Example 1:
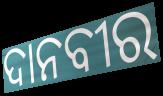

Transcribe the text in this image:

ଦାନବୀର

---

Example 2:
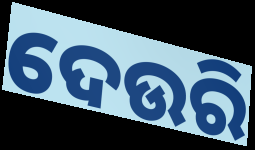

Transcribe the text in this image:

ଦେଉରି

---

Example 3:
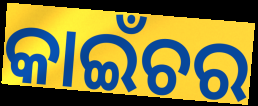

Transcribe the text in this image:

କାଇଁଚର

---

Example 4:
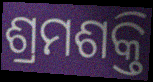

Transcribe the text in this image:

ଶ୍ରମଶକ୍ତି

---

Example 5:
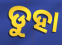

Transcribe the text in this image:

ଡୁହା